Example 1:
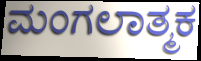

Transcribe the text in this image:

ಮಂಗಲಾತ್ಮಕ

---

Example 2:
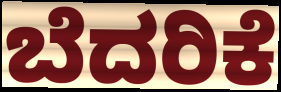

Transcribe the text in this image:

ಬೆದರಿಕೆ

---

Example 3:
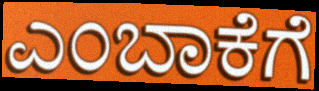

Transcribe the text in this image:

ಎಂಬಾಕೆಗೆ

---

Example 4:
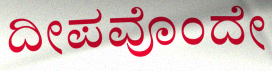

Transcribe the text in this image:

ದೀಪವೊಂದೇ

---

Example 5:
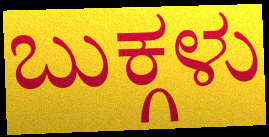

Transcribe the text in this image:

ಬುಕ್ಗಳು